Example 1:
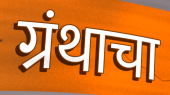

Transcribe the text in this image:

ग्रंथाचा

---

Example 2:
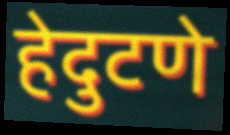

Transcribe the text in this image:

हेदुटणे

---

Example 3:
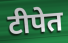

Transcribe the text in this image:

टीपेत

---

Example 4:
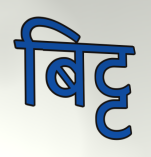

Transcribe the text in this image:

बिट्ट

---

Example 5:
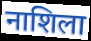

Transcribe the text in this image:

नाशिला